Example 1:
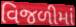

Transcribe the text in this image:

વિજળીમાં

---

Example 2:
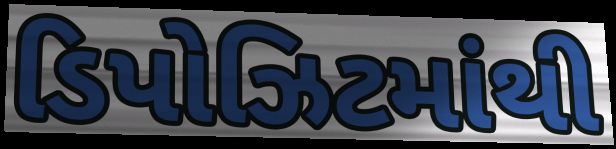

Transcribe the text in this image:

ડિપોઝિટમાંથી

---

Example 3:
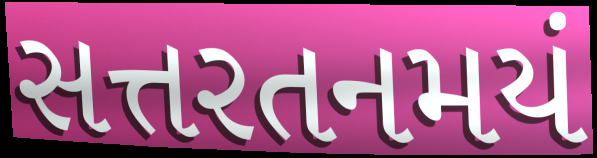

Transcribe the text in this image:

સત્તરતનમયં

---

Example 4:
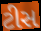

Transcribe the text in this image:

ટીસ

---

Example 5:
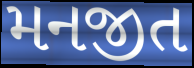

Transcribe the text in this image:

મનજીત